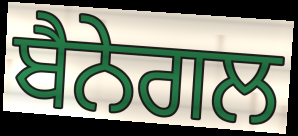
ਬੈਨੇਗਲ